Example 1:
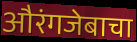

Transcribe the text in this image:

औरंगजेबाचा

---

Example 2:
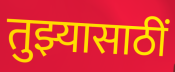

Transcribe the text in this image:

तुझ्यासाठीं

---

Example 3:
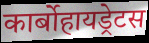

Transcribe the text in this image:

कार्बोहायड्रेटस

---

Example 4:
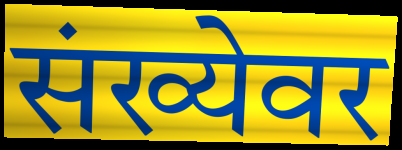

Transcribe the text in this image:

संख्येवर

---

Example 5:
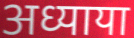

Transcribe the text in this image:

अध्याया